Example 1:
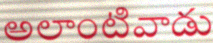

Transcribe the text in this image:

అలాంటివాడు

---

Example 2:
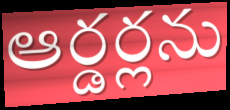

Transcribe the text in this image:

ఆర్డర్లను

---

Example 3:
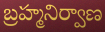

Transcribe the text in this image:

బ్రహ్మనిర్వాణ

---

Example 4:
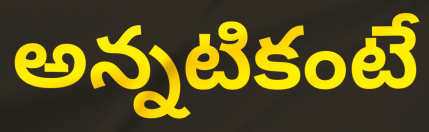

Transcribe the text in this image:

అన్నటికంటే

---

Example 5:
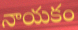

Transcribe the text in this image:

నాయకం